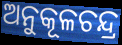
ଅନୁକୂଳଚନ୍ଦ୍ର